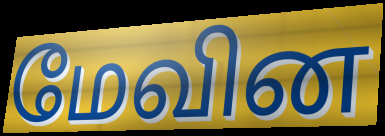
மேவின